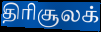
திரிசூலக்